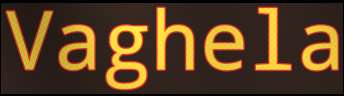
Vaghela